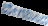
ವೇಗದಿಂದ